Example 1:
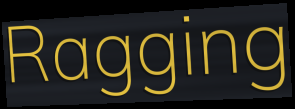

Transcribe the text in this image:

Ragging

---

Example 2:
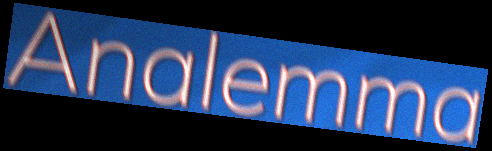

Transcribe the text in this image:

Analemma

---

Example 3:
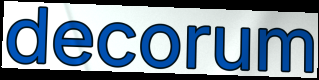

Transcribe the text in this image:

decorum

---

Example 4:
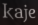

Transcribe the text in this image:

kaje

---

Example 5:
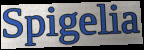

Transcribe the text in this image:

Spigelia